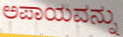
ಅಪಾಯವನ್ನು